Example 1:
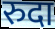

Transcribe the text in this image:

रुदा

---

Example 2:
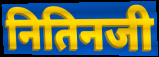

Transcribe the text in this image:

नितिनजी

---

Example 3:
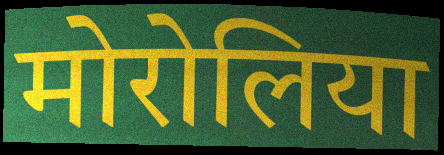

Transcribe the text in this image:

मोरोलिया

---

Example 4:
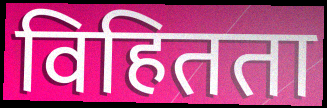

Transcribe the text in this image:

विहितता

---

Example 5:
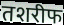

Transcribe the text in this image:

तशरीफ